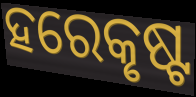
ହରେକୃଷ୍ଟ